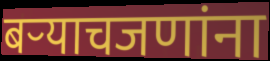
बऱ्याचजणांना